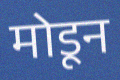
मोडून